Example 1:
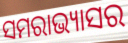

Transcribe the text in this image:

ସମରାଭ୍ୟାସର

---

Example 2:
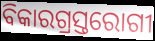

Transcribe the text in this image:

ବିକାରଗ୍ରସ୍ତରୋଗୀ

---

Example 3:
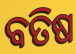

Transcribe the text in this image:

ବତିଷ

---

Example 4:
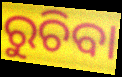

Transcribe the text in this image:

ରୁଚିବା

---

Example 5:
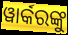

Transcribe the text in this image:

ୱାର୍କରଙ୍କୁ